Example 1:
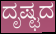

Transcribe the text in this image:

ದೃಷ್ಟದ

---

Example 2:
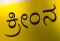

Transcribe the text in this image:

ಕ್ರೀಂನ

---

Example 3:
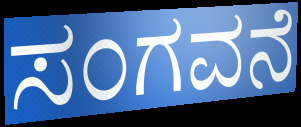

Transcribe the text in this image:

ಸಂಗವನೆ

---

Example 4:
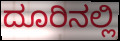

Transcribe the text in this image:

ದೂರಿನಲ್ಲಿ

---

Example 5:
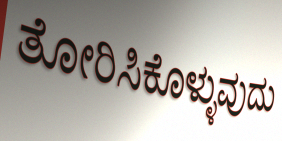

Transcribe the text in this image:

ತೋರಿಸಿಕೊಳ್ಳುವುದು